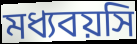
মধ্যবয়সি